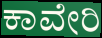
ಕಾವೇರಿ